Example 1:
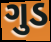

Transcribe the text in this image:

ગુડ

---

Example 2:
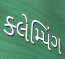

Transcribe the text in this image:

ક્લેમ્પિંગ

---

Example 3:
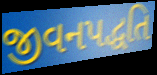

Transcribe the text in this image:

જીવનપદ્ધતિ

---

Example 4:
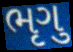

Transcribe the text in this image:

ભૃગુ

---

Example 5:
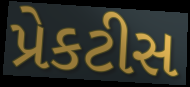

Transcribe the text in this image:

પ્રેકટીસ